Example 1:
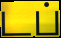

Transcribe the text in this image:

டப்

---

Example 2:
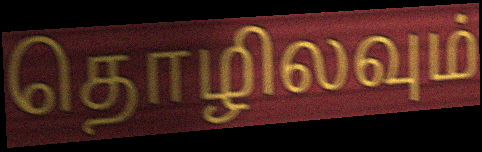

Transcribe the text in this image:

தொழிலவும்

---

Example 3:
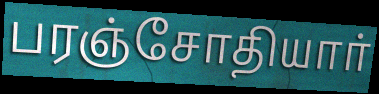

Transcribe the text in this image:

பரஞ்சோதியார்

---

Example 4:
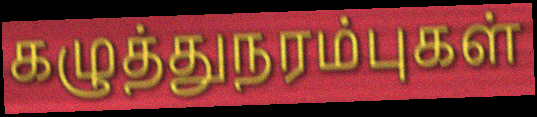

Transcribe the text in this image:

கழுத்துநரம்புகள்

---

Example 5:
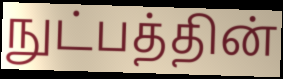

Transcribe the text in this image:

நுட்பத்தின்